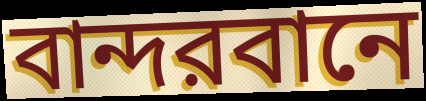
বান্দরবানে